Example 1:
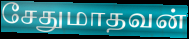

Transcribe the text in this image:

சேதுமாதவன்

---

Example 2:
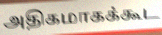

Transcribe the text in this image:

அதிகமாகக்கூட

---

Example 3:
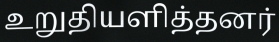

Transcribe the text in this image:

உறுதியளித்தனர்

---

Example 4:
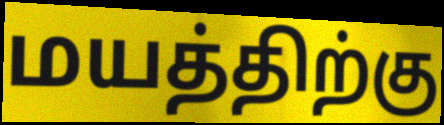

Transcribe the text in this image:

மயத்திற்கு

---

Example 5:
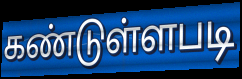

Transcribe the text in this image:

கண்டுள்ளபடி